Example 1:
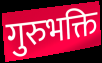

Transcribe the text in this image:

गुरुभक्ति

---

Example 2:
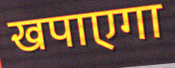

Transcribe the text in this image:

खपाएगा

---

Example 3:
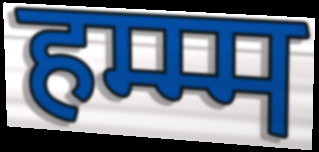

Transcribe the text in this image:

हम्म्म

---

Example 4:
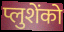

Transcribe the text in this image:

प्लुशेंको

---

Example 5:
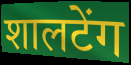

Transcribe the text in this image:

शालटेंग